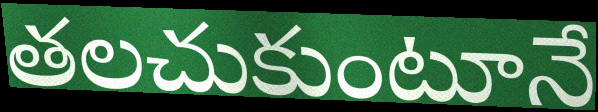
తలచుకుంటూనే